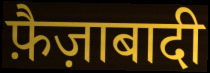
फ़ैज़ाबादी